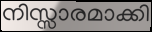
നിസ്സാരമാക്കി